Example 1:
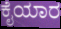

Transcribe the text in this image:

ಕೈಯಾರ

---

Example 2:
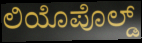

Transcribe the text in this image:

ಲಿಯೊಪೊಲ್ಡ್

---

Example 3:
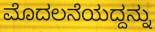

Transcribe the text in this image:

ಮೊದಲನೆಯದ್ದನ್ನು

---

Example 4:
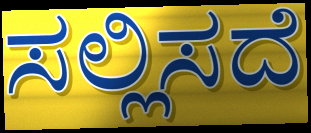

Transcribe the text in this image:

ಸಲ್ಲಿಸದೆ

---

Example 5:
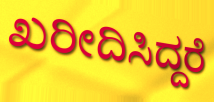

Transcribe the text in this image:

ಖರೀದಿಸಿದ್ದರೆ